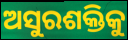
ଅସୁରଶକ୍ତିକୁ